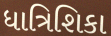
ધાત્રિશિકા